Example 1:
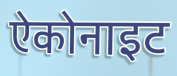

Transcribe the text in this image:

ऐकोनाइट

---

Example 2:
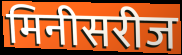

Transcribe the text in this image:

मिनीसरीज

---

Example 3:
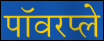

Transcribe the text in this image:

पॉवरप्ले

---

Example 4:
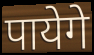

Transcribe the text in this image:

पायेगे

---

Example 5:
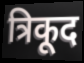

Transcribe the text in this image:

त्रिकूद